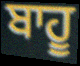
ਬਾਹੂ